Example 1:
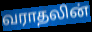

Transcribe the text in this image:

வராதலின்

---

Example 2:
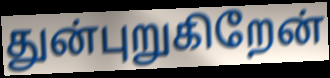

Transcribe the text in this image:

துன்புறுகிறேன்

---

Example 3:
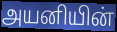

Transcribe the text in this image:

அயனியின்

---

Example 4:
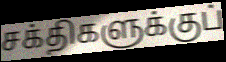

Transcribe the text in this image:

சக்திகளுக்குப்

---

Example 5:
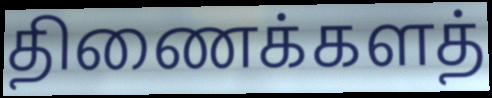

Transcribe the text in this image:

திணைக்களத்